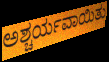
ಅಶ್ಚರ್ಯವಾಯಿತು